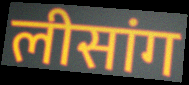
लीसांग